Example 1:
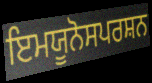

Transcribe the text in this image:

ਇਮਯੂਨੋਸਪਰਸ਼ਨ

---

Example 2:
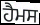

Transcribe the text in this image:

ਹੈਮਸ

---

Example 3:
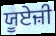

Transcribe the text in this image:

ਯੂਏਜ਼ੀ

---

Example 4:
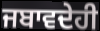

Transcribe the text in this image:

ਜਬਾਵਦੇਹੀ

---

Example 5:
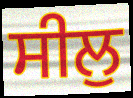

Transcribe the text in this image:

ਸੀਲੁ